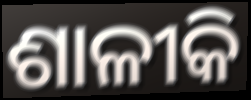
ଶାଳୀକି